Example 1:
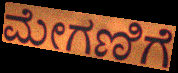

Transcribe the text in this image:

ಮೇಗಣಿಗೆ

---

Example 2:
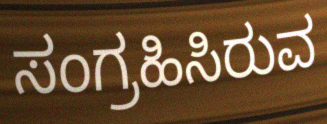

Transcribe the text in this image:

ಸಂಗ್ರಹಿಸಿರುವ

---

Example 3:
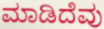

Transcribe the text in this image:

ಮಾಡಿದೆವು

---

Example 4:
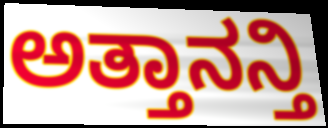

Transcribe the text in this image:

ಅತ್ತಾನನ್ತಿ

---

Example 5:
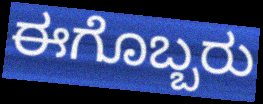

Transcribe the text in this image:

ಈಗೊಬ್ಬರು